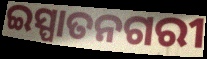
ଇସ୍ପାତନଗରୀ